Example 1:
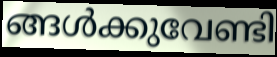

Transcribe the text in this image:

ങ്ങൾക്കുവേണ്ടി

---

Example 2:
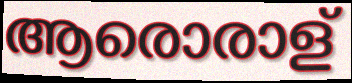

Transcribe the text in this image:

ആരൊരാള്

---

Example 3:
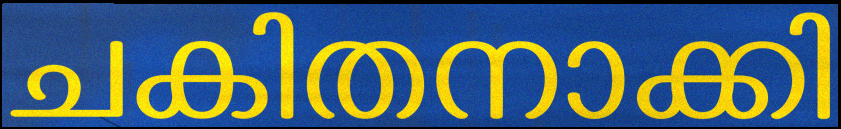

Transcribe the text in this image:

ചകിതനാക്കി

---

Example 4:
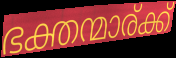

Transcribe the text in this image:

ഭക്തന്മാര്ക്ക്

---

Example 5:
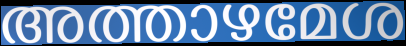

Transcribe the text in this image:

അത്താഴമേശ